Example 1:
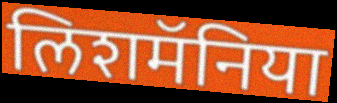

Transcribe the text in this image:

लिशमॅनिया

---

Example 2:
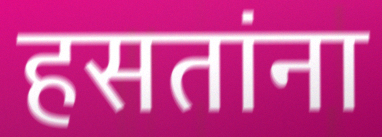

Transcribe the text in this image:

हसतांना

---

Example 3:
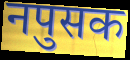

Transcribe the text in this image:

नपुसक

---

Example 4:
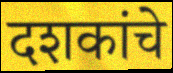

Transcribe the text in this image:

दशकांचे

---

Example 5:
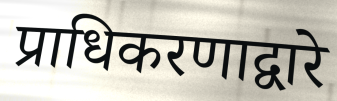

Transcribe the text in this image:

प्राधिकरणाद्वारे